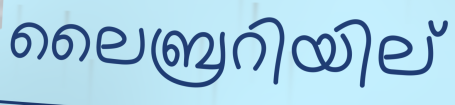
ലൈബ്രറിയില്